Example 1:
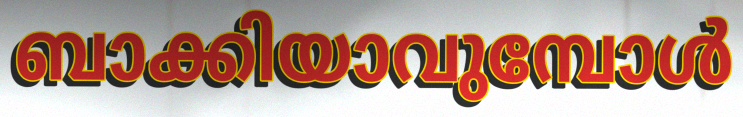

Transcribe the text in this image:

ബാക്കിയാവുമ്പോൾ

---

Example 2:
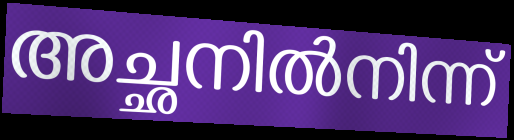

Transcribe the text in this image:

അച്ഛനിൽനിന്ന്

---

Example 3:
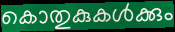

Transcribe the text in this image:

കൊതുകുകൾക്കും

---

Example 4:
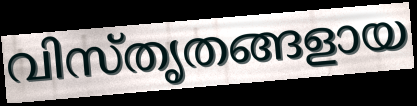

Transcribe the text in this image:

വിസ്തൃതങ്ങളായ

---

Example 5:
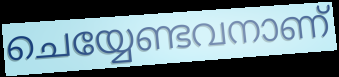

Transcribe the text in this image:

ചെയ്യേണ്ടവനാണ്